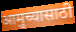
आमुच्यासाठी